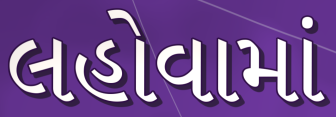
લહોવામાં